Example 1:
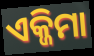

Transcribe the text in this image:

ଏକ୍ଜିମା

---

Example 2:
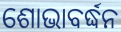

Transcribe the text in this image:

ଶୋଭାବର୍ଦ୍ଧନ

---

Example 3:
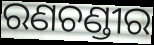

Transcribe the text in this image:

ରଣଚଣ୍ଡୀର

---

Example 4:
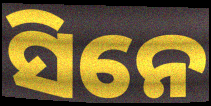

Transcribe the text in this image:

ସିନେ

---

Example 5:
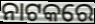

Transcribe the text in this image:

ନାଟକରେ